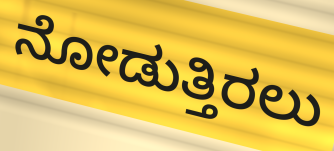
ನೋಡುತ್ತಿರಲು